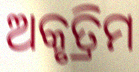
ଅକୃତ୍ରିମ